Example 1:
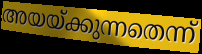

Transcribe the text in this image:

അയയ്ക്കുന്നതെന്ന്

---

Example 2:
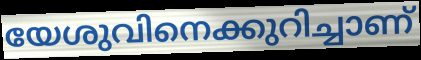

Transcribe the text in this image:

യേശുവിനെക്കുറിച്ചാണ്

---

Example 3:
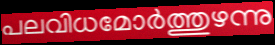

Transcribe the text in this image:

പലവിധമോർത്തുഴന്നു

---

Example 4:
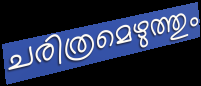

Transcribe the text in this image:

ചരിത്രമെഴുത്തും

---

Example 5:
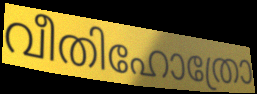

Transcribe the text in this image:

വീതിഹോത്രോ